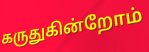
கருதுகின்றோம்